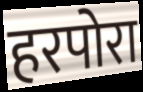
हरपोरा